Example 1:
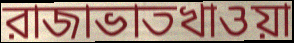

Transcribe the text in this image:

রাজাভাতখাওয়া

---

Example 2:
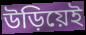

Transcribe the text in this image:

উড়িয়েই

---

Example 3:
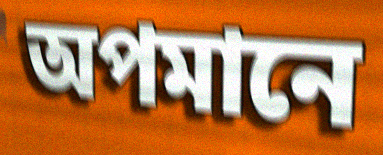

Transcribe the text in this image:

অপমানে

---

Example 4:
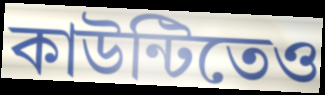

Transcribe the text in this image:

কাউন্টিতেও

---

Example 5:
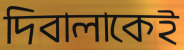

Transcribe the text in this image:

দিবালাকেই